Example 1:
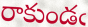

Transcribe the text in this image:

రాకుండఁ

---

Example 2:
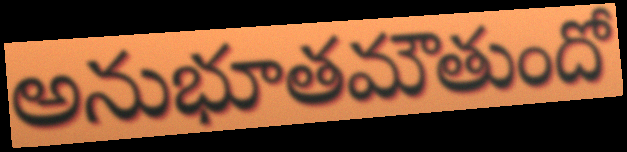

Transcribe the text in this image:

అనుభూతమౌతుందో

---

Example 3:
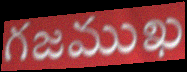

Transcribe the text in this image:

గజముఖ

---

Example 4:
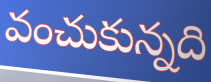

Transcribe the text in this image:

వంచుకున్నది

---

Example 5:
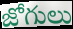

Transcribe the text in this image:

జోగులు